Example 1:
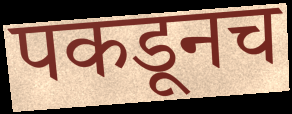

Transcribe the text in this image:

पकडूनच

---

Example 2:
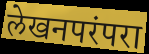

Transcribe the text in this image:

लेखनपरंपरा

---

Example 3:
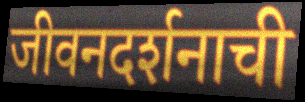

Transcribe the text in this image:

जीवनदर्शनाची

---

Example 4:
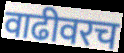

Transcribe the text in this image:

वाढीवरच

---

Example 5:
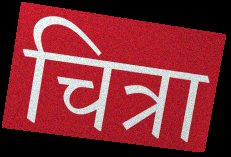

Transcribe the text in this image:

चित्रा